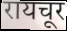
रायचूर